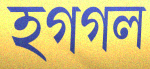
হগগল